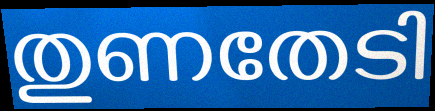
തുണതേടി